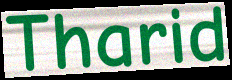
Tharid